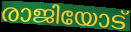
രാജിയോട്